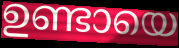
ഉണ്ടായെ